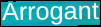
Arrogant